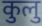
कुलु